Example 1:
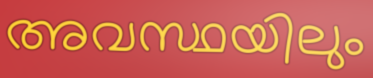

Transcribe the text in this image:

അവസ്ഥയിലും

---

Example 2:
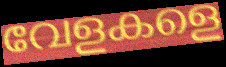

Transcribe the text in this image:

വേളകളെ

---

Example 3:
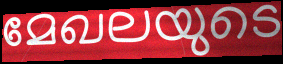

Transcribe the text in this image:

മേഖലയുടെ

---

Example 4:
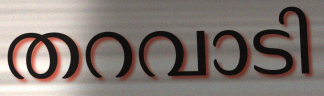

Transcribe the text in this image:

തറവാടി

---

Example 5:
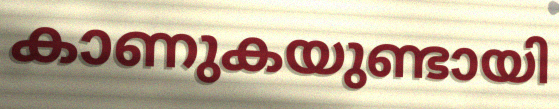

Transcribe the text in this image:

കാണുകയുണ്ടായി